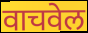
वाचवेल